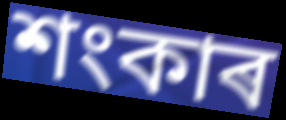
শংকাৰ